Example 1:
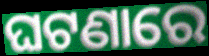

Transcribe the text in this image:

ଘଟଣାରେ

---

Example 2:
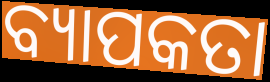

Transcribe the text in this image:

ବ୍ୟାପକତା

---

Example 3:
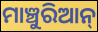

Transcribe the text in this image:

ମାଞ୍ଚୁରିଆନ୍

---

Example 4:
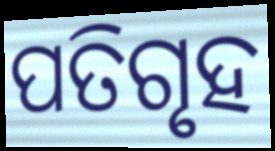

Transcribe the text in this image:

ପତିଗୃହ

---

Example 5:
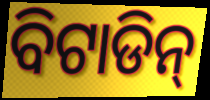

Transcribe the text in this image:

ବିଟାଡିନ୍